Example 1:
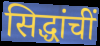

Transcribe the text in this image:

सिद्धांचीं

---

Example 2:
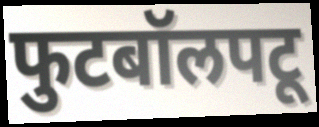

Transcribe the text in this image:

फुटबॉलपटू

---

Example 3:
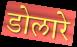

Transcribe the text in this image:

डोलारे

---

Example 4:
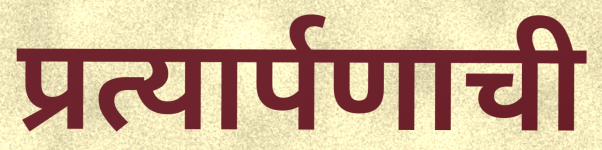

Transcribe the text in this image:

प्रत्यार्पणाची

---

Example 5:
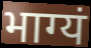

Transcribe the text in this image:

भाग्यं